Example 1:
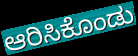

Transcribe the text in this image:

ಆರಿಸಿಕೊಂಡು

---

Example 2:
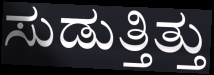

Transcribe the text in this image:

ಸುಡುತ್ತಿತ್ತು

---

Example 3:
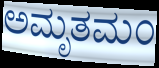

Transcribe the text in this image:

ಅಮೃತಮಂ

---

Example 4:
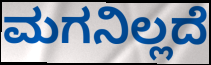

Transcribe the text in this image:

ಮಗನಿಲ್ಲದೆ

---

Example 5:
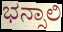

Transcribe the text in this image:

ಭನ್ಸಾಲಿ